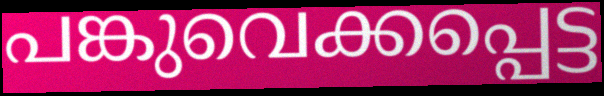
പങ്കുവെക്കപ്പെട്ട